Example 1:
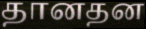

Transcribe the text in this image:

தானதன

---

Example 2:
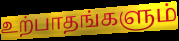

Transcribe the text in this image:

உற்பாதங்களும்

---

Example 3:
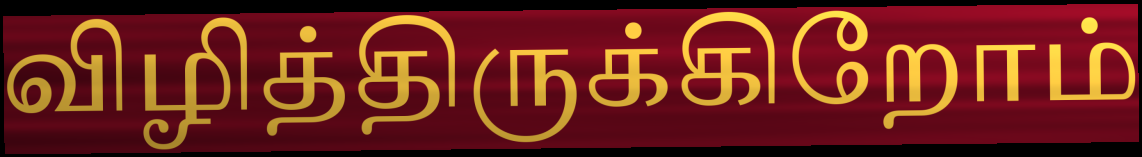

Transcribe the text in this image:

விழித்திருக்கிறோம்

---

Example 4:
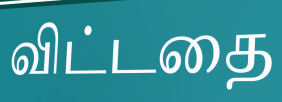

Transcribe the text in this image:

விட்டதை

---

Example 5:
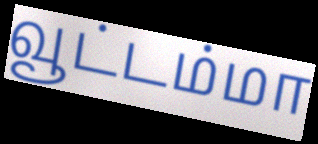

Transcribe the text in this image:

வூட்டம்மா